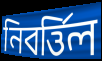
নিবর্ত্তিল